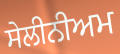
ਸੇਲੀਨੀਅਮ